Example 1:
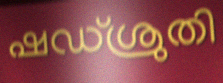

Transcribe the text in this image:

ഷഡ്ശ്രുതി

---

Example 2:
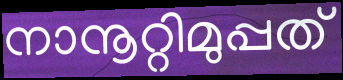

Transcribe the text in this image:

നാനൂറ്റിമുപ്പത്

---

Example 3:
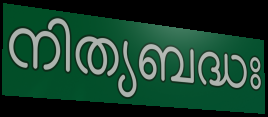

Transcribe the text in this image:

നിത്യബദ്ധഃ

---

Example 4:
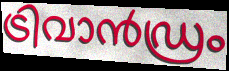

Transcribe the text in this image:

ട്രിവാൻഡ്രം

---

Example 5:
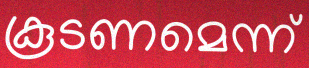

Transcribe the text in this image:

കൂടണമെന്ന്